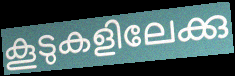
കൂടുകളിലേക്കു